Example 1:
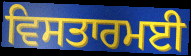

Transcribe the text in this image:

ਵਿਸਤਾਰਮਈ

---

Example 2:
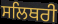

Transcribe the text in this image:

ਸਲਿਥਰੀ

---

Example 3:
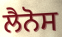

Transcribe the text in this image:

ਲੈਨੋਸ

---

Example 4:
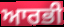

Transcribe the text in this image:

ਆਰਭੀ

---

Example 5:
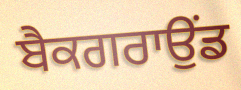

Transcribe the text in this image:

ਬੈਕਗਰਾਉਂਡ